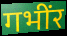
गभींर